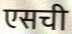
एसची